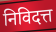
निविदत्त